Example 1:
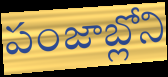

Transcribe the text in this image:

పంజాబ్లోని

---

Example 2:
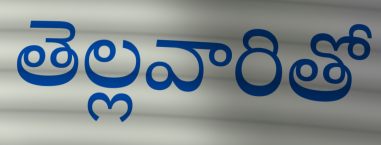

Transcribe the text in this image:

తెల్లవారితో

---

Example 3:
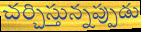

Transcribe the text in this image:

చర్చిస్తున్నప్పుడు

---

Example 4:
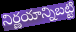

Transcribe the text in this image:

నిర్ణయాన్నిబట్టి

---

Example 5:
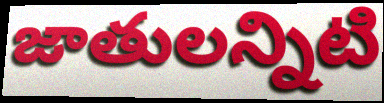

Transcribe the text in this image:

జాతులన్నిటి